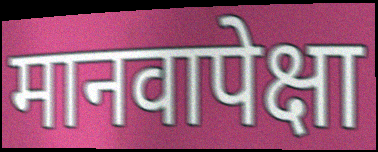
मानवापेक्षा